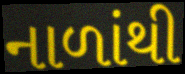
નાળાંથી